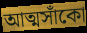
আত্মসাঁকো